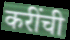
करींची